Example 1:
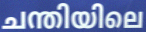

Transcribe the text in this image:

ചന്തിയിലെ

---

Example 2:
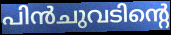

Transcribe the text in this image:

പിൻചുവടിന്റെ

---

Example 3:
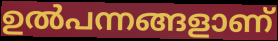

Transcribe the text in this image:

ഉൽപന്നങ്ങളാണ്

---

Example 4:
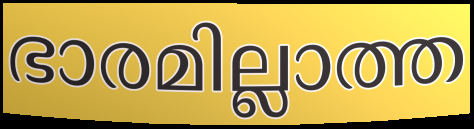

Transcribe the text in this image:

ഭാരമില്ലാത്ത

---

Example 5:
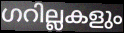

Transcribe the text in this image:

ഗറില്ലകളും